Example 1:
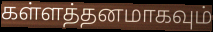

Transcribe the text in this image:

கள்ளத்தனமாகவும்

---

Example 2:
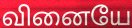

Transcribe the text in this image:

வினையே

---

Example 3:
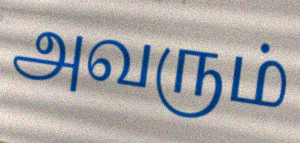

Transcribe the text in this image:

அவரும்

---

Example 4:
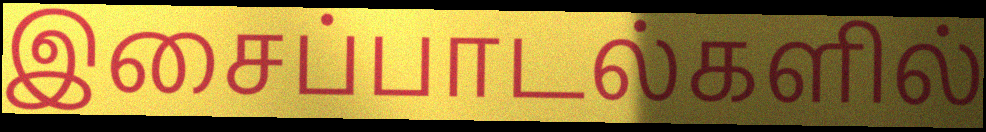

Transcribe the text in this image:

இசைப்பாடல்களில்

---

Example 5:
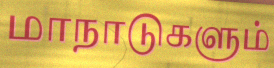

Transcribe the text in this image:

மாநாடுகளும்